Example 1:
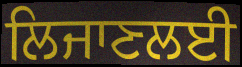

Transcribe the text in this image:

ਲਿਜਾਣਲਈ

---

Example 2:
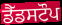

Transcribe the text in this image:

ਡੈੱਡਸਟੌਪ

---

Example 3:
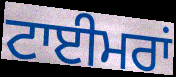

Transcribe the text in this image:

ਟਾਈਮਰਾਂ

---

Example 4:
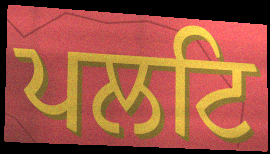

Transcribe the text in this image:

ਪਲਟਿ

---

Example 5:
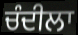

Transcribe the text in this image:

ਚੰਦੀਲਾ